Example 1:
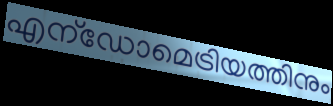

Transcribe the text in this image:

എന്ഡോമെട്രിയത്തിനും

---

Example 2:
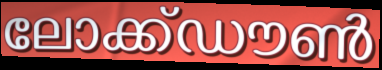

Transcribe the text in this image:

ലോക്ക്ഡൗൺ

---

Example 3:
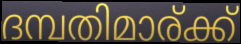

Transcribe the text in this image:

ദമ്പതിമാര്ക്ക്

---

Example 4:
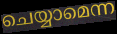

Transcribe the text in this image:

ചെയ്യാമെന്ന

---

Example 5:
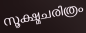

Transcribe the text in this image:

സൂക്ഷ്മചരിത്രം